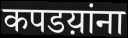
कपडय़ांना